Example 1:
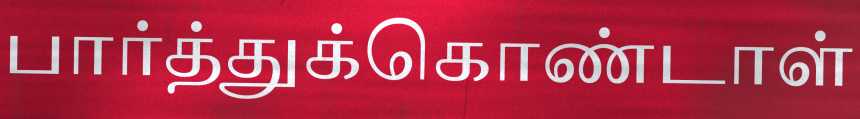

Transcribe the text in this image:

பார்த்துக்கொண்டாள்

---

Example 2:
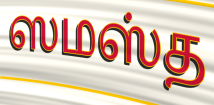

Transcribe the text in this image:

ஸமஸ்த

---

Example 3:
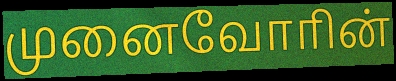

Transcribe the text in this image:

முனைவோரின்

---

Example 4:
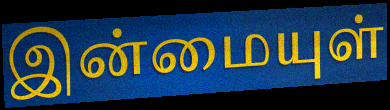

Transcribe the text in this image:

இன்மையுள்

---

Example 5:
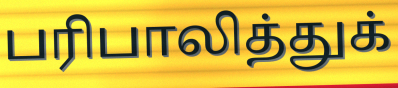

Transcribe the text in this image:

பரிபாலித்துக்